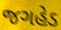
જગહેડ